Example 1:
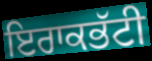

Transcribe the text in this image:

ਇਰਾਕਭੱਟੀ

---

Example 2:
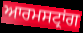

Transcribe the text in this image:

ਆਰਮਸਟ੍ਰਾਂਗ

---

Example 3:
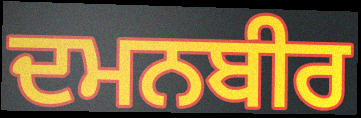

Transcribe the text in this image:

ਦਮਨਬੀਰ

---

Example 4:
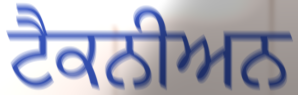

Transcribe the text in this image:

ਟੈਕਨੀਅਨ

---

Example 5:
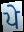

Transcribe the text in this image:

ਪੇ